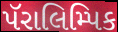
પૅરાલિમ્પિક